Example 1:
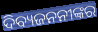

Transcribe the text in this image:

ଦିବ୍ୟଜନନୀଙ୍କର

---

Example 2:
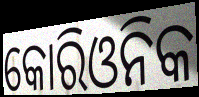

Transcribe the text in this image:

କୋରିଓନିକ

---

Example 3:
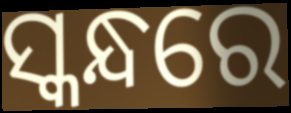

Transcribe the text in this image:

ସ୍କନ୍ଧରେ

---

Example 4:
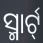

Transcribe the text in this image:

ସ୍ମାର୍ଟ୍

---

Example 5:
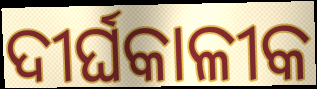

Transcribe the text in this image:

ଦୀର୍ଘକାଳୀକ